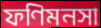
ফণিমনসা